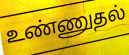
உண்ணுதல்